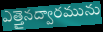
ఎత్తైనద్వారమును